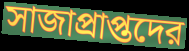
সাজাপ্রাপ্তদের